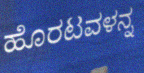
ಹೊರಟವಳನ್ನ